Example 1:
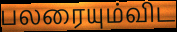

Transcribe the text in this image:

பலரையும்விட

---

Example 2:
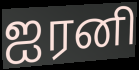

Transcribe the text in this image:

ஐரனி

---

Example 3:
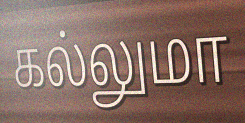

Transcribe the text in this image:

கல்லுமா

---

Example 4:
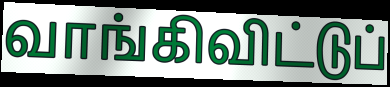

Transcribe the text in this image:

வாங்கிவிட்டுப்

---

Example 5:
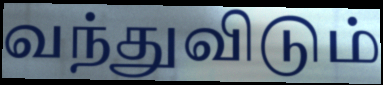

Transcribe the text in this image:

வந்துவிடும்